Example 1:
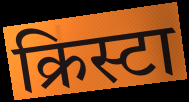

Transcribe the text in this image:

क्रिस्टा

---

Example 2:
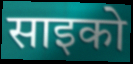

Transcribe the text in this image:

साइको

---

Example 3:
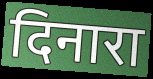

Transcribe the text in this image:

दिनारा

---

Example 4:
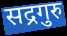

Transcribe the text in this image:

सद्रगुरु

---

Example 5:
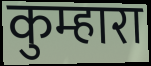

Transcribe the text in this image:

कुम्हारा